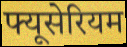
फ्यूसेरियम